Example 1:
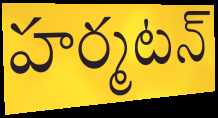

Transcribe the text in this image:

హర్మటన్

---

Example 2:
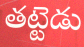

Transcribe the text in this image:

తట్టెడు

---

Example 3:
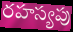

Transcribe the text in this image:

రహస్యపు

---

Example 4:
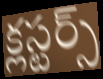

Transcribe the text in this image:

క్లస్టర్స్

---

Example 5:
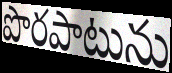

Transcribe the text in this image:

పొరపాటును